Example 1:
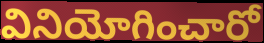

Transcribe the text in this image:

వినియోగించారో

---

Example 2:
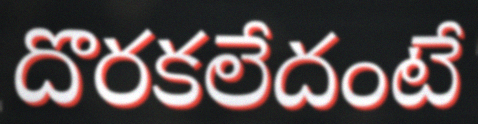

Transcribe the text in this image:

దొరకలేదంటే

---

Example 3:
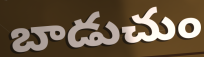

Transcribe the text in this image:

బాడుచుం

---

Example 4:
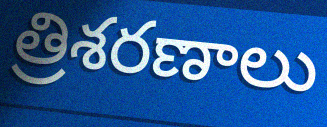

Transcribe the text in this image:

త్రిశరణాలు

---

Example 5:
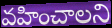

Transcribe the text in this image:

వహించాలని